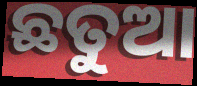
ଛତୁଆ